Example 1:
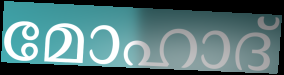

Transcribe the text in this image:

മോഹാദ്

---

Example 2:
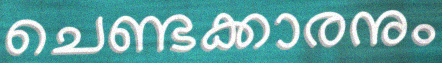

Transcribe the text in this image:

ചെണ്ടക്കാരനും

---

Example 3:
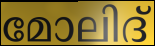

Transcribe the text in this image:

മോലിദ്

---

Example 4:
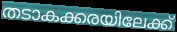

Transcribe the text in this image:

തടാകക്കരയിലേക്ക്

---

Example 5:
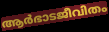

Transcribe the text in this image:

ആർഭാടജീവിതം